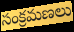
సంక్రమణలు